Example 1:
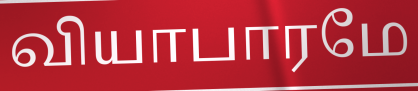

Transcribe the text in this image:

வியாபாரமே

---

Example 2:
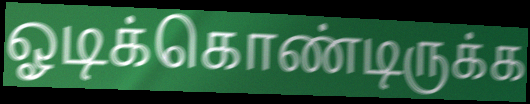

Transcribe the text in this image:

ஓடிக்கொண்டிருக்க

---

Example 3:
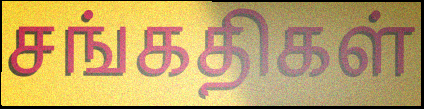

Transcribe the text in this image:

சங்கதிகள்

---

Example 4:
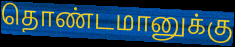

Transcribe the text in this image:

தொண்டமானுக்கு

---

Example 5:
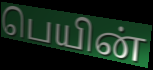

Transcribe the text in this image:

பெயின்